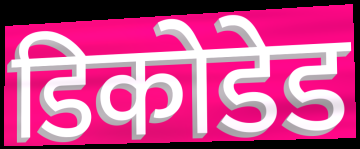
डिकोडेड